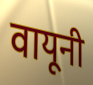
वायूनी